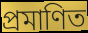
প্রমাণিত